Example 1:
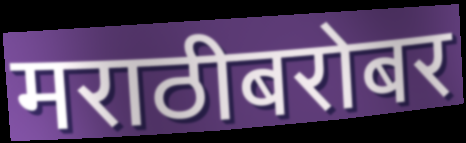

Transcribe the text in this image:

मराठीबरोबर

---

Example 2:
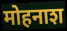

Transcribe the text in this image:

मोहनाश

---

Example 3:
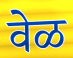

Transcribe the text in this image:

वेळ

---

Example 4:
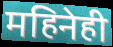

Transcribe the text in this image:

महिनेही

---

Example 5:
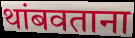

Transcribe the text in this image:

थांबवताना